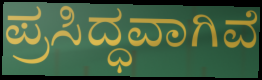
ಪ್ರಸಿದ್ಧವಾಗಿವೆ